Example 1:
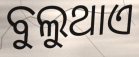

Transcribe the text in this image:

ବୁଲୁଥାଏ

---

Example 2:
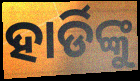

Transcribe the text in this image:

ହାର୍ଡିଙ୍କୁ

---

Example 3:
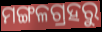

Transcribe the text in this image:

ମଙ୍ଗଳଗ୍ରହରୁ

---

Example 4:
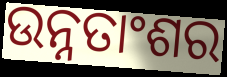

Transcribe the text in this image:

ଉନ୍ନତାଂଶର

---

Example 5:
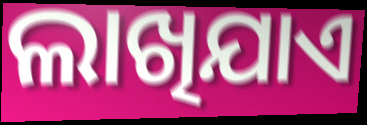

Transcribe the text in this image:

ଲାଖିଯାଏ